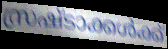
സ്രഷ്ടാക്കൾക്ക്